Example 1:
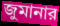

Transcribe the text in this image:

জুমানার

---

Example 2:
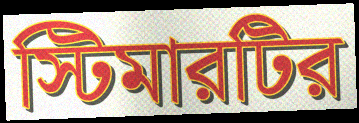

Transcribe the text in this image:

স্টিমারটির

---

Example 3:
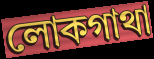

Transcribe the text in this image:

লোকগাথা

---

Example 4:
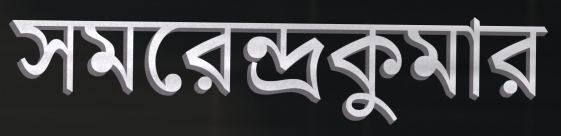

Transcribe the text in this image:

সমরেন্দ্রকুমার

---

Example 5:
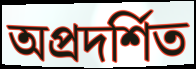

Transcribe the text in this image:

অপ্রদর্শিত